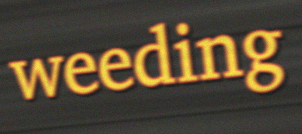
weeding